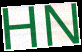
HN